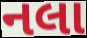
નલા